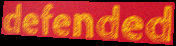
defended